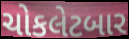
ચોકલેટબાર